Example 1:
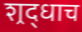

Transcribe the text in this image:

श्रद्धाच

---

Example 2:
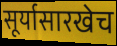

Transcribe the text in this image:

सूर्यासारखेच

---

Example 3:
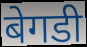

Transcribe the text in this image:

बेगडी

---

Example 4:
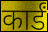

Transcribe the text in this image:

कार्डं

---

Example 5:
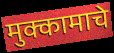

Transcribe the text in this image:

मुक्कामाचे